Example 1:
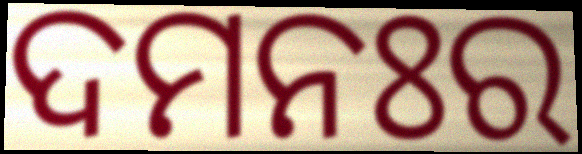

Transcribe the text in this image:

ଦମନଃର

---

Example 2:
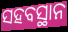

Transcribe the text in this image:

ସହବସ୍ଥାନ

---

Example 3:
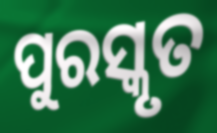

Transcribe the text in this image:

ପୁରସ୍କୃତ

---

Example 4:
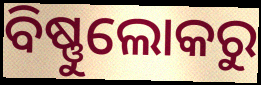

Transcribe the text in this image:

ବିଷ୍ଣୁଲୋକରୁ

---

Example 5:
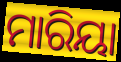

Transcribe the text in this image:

ମାରିୟା